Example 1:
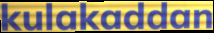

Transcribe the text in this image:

kulakaddan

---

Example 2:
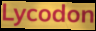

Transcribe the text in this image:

Lycodon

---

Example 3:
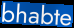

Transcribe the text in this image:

bhabte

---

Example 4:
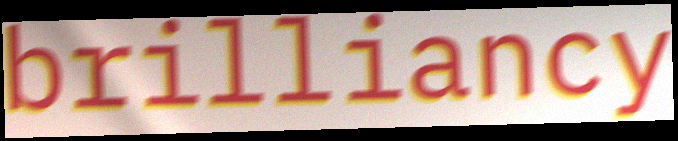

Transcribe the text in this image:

brilliancy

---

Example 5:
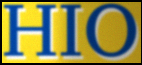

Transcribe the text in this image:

HIO